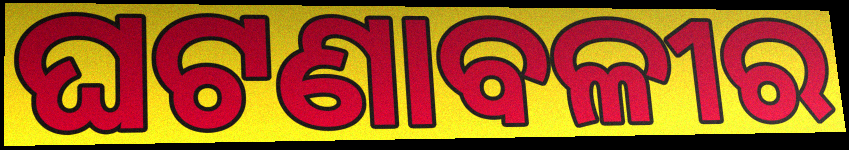
ଘଟଣାବଳୀର